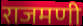
राजमणी